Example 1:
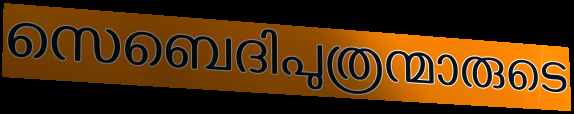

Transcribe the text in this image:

സെബെദിപുത്രന്മാരുടെ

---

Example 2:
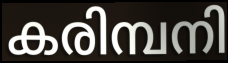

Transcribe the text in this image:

കരിമ്പനി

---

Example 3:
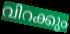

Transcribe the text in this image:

വിറക്കും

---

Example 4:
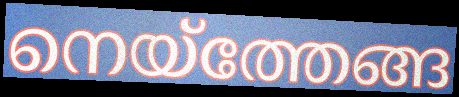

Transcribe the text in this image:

നെയ്ത്തേങ്ങ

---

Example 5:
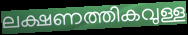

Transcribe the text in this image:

ലക്ഷണത്തികവുള്ള